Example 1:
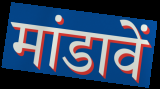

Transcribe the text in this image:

मांडावें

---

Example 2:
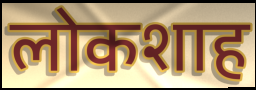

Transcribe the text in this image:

लोकशाह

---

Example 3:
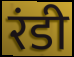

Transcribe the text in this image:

रंडी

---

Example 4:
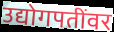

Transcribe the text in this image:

उद्योगपतींवर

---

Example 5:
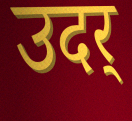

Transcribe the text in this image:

उदर्